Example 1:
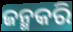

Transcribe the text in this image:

ଜନ୍ମକରି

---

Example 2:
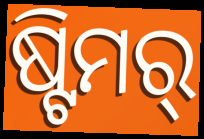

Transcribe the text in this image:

ଷ୍ଟିମର୍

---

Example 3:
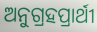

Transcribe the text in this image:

ଅନୁଗ୍ରହପ୍ରାର୍ଥୀ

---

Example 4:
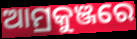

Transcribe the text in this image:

ଆମ୍ରକୁଞ୍ଜରେ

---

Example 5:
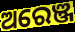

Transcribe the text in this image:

ଅରେଞ୍ଜ